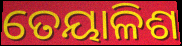
ତେୟାଳିଶ